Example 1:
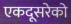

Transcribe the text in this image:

एकदूसरेको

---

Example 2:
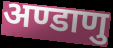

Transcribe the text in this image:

अण्डाणु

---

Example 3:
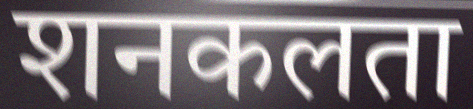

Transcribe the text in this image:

शनकलता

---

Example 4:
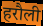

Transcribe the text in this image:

हरौली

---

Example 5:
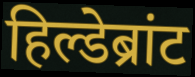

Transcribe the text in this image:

हिल्डेब्रांट